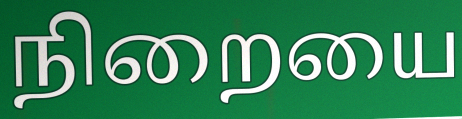
நிறையை